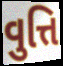
વુત્તિ